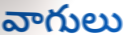
వాగులు